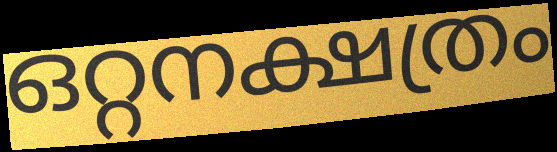
ഒറ്റനക്ഷത്രം